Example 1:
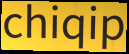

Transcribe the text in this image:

chiqip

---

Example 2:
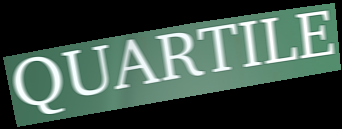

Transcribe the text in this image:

QUARTILE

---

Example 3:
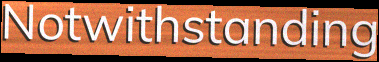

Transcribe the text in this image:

Notwithstanding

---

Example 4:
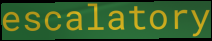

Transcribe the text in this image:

escalatory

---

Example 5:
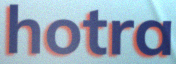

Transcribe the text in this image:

hotra